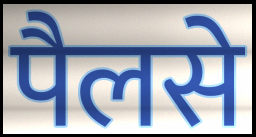
पैलसे